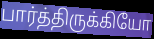
பார்த்திருக்கியோ